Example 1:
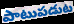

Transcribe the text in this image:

పాటుపడుట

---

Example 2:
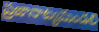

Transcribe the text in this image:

ప్రజానాట్యమండలి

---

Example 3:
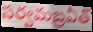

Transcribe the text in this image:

సర్వమబ్రవీత్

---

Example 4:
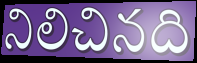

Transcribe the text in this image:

నిలిచినది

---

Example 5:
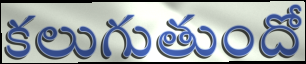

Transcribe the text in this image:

కలుగుతుందో